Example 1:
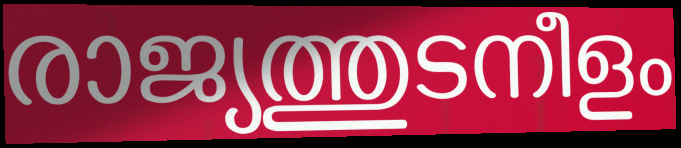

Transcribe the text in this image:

രാജ്യത്തുടനീളം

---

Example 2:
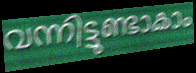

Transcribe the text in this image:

വന്നിട്ടുണ്ടാകാം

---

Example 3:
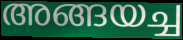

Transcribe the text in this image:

അങ്ങയച്ച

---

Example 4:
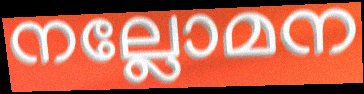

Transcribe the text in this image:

നല്ലോമന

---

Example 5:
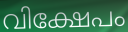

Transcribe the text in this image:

വിക്ഷേപം